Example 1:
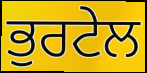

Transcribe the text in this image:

ਭੁਰਟੇਲ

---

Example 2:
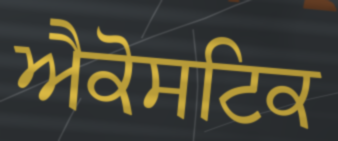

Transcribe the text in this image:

ਐਕੋਸਟਿਕ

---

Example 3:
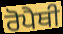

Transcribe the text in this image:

ਰੋਪੈਥੀ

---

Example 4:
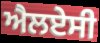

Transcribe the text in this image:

ਐਲਏਸੀ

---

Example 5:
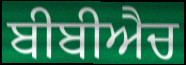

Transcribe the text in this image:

ਬੀਬੀਐਚ